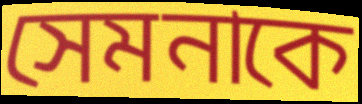
সেমনাকে